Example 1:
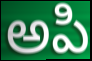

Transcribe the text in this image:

అపి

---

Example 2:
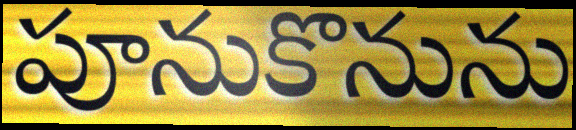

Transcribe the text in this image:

పూనుకొనును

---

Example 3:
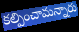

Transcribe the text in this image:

కల్పించామన్నారు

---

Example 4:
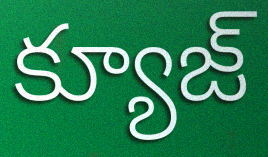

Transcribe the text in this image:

క్యూజ్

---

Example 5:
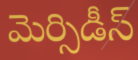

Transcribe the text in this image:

మెర్సిడీస్